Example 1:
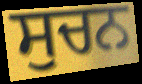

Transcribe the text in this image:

ਸੁਚਨ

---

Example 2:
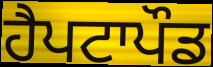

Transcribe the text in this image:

ਹੈਪਟਾਪੌਡ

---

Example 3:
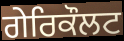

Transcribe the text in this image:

ਗੇਰਿਕੌਲਟ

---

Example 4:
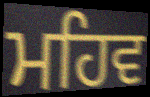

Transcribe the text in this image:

ਮਹਿਵ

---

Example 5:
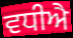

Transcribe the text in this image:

ਵਧੀਐ